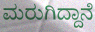
ಮರುಗಿದ್ದಾನೆ